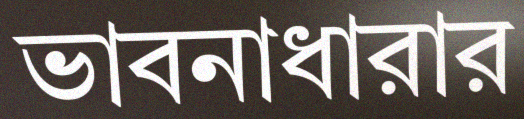
ভাবনাধারার